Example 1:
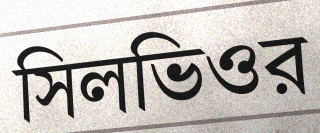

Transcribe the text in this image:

সিলভিওর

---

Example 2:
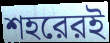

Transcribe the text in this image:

শহরেরই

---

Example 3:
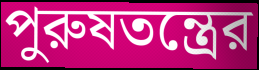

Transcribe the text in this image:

পুরুষতন্ত্রের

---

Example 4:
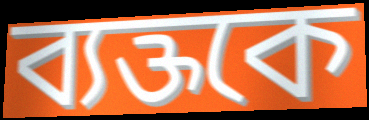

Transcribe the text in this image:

ব্যক্তকে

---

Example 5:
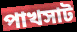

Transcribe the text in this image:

পাখসাট